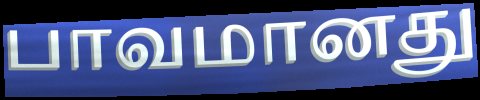
பாவமானது